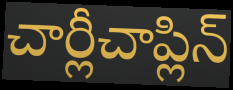
చార్లీచాప్లిన్